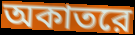
অকাতরে